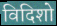
विदिशो